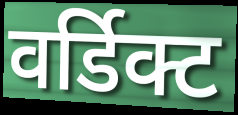
वर्डिक्ट